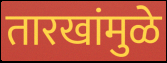
तारखांमुळे